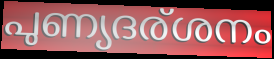
പുണ്യദര്ശനം